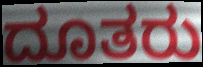
ದೂತರು